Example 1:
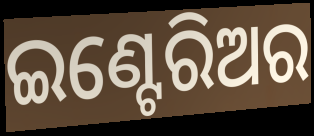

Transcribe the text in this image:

ଇଣ୍ଟେରିଅର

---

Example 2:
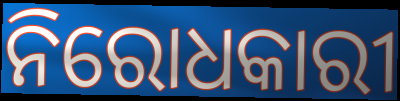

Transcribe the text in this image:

ନିରୋଧକାରୀ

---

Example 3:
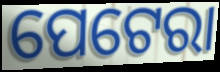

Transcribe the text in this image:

ପେଟେରା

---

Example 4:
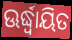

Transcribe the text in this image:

ଊର୍ଦ୍ଧ୍ୱାୟିତ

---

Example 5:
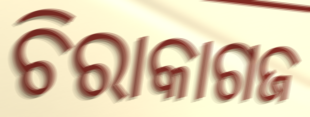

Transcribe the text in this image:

ଚିରାକାଗଜ